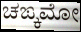
ಚಙ್ಕಮೋ